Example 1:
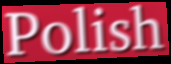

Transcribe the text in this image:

Polish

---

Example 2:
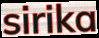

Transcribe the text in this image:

sirika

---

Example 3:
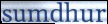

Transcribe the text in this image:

sumdhur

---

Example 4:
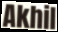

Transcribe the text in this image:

Akhil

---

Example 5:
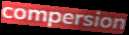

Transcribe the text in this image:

compersion